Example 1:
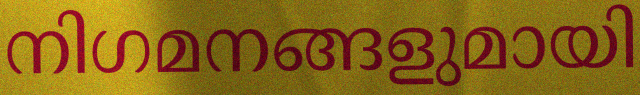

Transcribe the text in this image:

നിഗമനങ്ങളുമായി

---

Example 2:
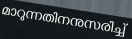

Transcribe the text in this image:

മാറുന്നതിനനുസരിച്ച്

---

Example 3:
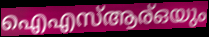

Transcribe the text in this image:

ഐഎസ്ആര്ഒയും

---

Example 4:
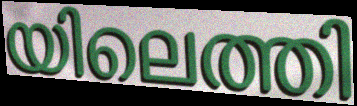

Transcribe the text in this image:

യിലെത്തി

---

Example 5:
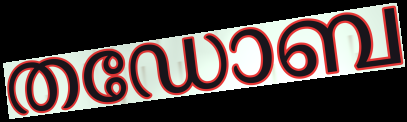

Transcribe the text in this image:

തഡോബ